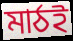
মাঠই